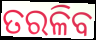
ତରଳିବ